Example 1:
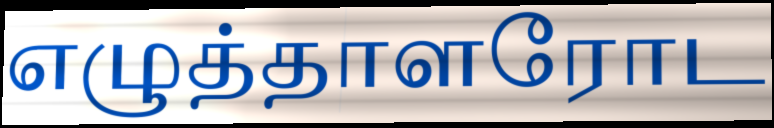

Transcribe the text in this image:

எழுத்தாளரோட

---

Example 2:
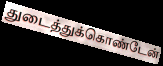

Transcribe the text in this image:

துடைத்துக்கொண்டேன்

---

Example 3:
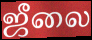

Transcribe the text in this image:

ஜீலை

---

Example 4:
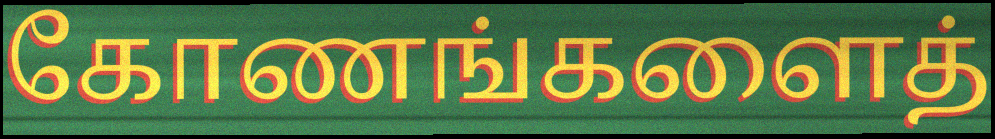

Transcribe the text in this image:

கோணங்களைத்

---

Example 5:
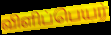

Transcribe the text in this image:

விளிப்பெயர்